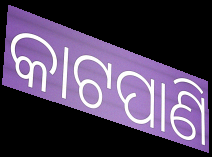
କାଟପାଣି